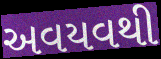
અવયવથી